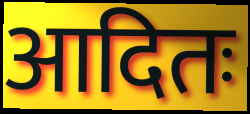
आदितः